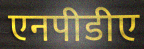
एनपीडीए